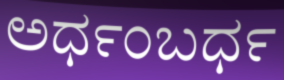
ಅರ್ಧಂಬರ್ಧ